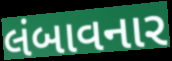
લંબાવનાર